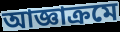
আজ্ঞাক্রমে